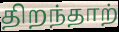
திறந்தாற்